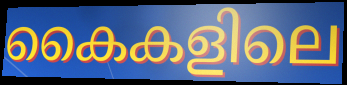
കൈകളിലെ